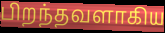
பிறந்தவளாகிய